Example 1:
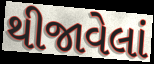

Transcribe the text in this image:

થીજાવેલાં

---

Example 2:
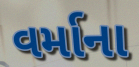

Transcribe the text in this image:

વર્માના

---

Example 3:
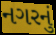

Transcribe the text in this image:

નગરનું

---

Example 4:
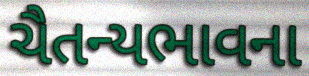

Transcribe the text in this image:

ચૈતન્યભાવના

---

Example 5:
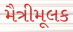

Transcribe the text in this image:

મૈત્રીમૂલક